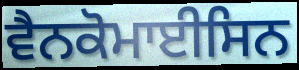
ਵੈਨਕੋਮਾਈਸਿਨ